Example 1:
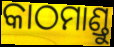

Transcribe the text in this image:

କାଠମାଣ୍ଡୁ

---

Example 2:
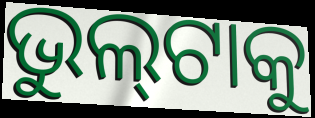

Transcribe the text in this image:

ଭୁଲ୍‍ଟାକୁ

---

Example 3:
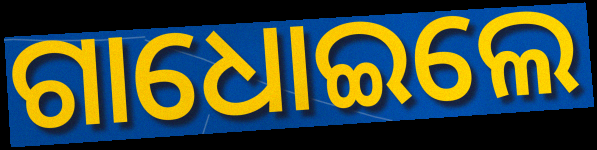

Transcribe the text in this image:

ଗାଧୋଇଲେ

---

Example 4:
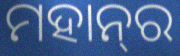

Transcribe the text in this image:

ମହାନ୍‌ର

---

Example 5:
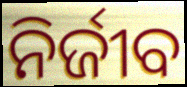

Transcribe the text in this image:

ନିର୍ଜୀବ